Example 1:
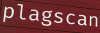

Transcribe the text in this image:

plagscan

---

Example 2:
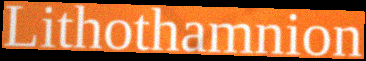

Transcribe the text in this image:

Lithothamnion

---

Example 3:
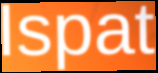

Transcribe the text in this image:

Ispat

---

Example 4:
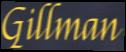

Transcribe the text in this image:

Gillman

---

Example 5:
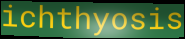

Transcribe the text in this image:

ichthyosis